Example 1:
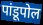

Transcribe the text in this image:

पांडूपोल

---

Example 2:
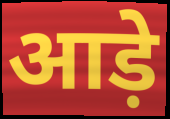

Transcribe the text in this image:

आड़े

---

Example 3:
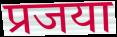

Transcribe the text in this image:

प्रजया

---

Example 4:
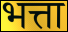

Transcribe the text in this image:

भत्ता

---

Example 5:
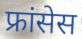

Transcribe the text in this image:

फ्रांसेस